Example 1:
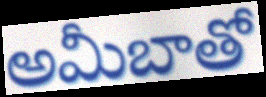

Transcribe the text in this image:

అమీబాతో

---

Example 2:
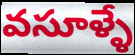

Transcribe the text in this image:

వసూళ్ళే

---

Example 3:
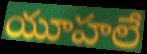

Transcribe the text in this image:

యూహలే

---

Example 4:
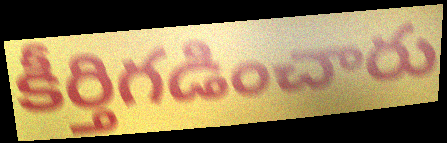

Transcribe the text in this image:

కీర్తిగడించారు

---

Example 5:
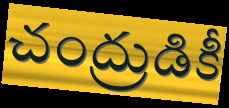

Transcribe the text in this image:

చంద్రుడికీ